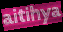
aitihya